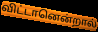
விட்டானென்றால்